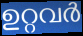
ഉറ്റവർ